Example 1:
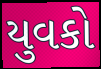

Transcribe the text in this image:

યુવકો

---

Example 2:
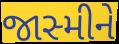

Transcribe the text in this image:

જાસ્મીને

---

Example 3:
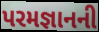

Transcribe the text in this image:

પરમજ્ઞાનની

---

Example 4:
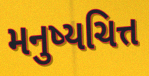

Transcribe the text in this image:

મનુષ્યચિત્ત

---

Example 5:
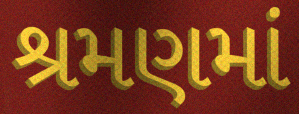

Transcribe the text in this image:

શ્રમણમાં